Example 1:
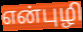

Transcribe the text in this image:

என்புழி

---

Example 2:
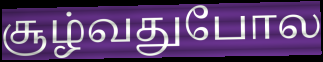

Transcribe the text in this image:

சூழ்வதுபோல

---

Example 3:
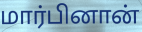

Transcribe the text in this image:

மார்பினான்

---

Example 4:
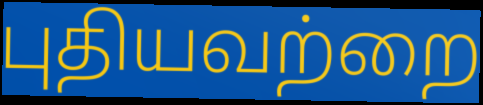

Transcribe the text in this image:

புதியவற்றை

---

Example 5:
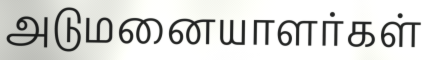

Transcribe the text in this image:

அடுமனையாளர்கள்